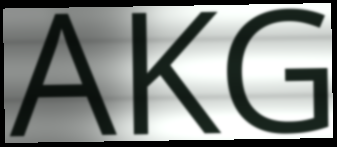
AKG